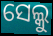
ସେଲ୍କୁ